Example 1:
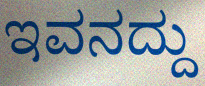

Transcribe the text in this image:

ಇವನದ್ದು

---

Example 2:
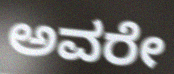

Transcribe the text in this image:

ಅವರೇ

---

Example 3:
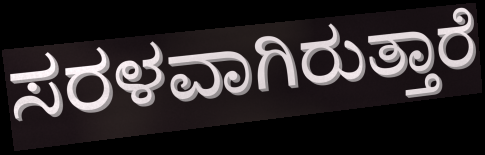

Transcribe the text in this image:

ಸರಳವಾಗಿರುತ್ತಾರೆ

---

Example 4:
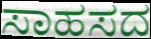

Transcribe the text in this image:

ಸಾಹಸದ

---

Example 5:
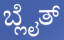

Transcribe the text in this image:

ಬ್ಲೈತ್